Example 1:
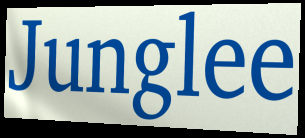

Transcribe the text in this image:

Junglee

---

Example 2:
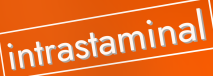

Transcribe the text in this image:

intrastaminal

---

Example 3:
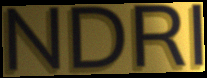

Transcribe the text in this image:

NDRI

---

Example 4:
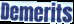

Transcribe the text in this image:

Demerits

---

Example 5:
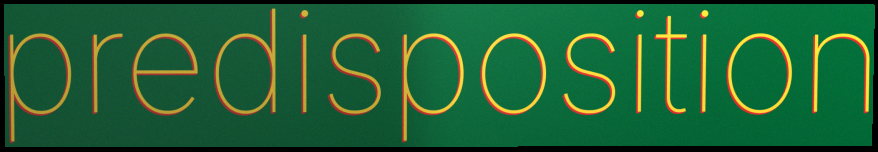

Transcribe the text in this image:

predisposition